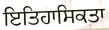
ਇਤਿਹਾਸਿਕਤਾ